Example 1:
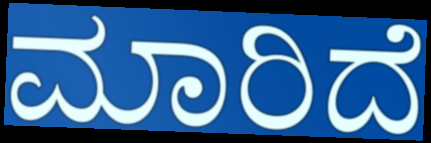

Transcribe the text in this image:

ಮಾರಿದೆ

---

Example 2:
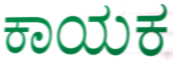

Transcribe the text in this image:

ಕಾಯಕ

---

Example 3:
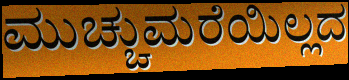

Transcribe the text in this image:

ಮುಚ್ಚುಮರೆಯಿಲ್ಲದ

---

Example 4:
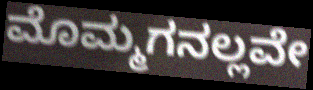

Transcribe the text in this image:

ಮೊಮ್ಮಗನಲ್ಲವೇ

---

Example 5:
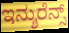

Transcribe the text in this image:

ಇನ್ಶುರೆನ್ಸ್